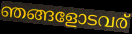
ഞങ്ങളോടവര്